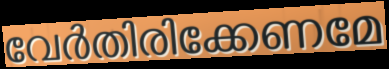
വേർതിരിക്കേണമേ